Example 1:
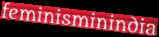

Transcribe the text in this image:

feminisminindia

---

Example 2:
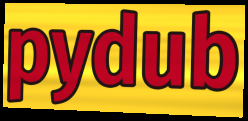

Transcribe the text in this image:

pydub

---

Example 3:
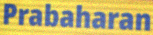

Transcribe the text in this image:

Prabaharan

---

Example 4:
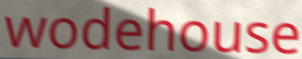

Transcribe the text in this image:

wodehouse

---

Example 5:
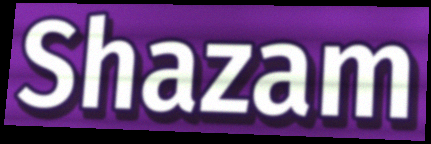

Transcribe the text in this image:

Shazam